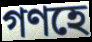
গণহে